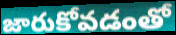
జారుకోవడంతో